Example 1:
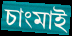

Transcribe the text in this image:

চাংমাই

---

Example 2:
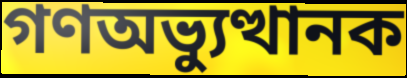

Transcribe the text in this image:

গণঅভ্যুত্থানক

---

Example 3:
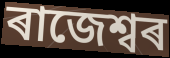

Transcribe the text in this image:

ৰাজেশ্বৰ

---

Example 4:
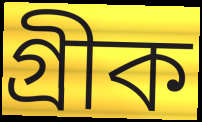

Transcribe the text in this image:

গ্ৰীক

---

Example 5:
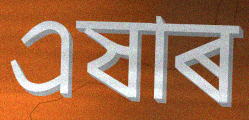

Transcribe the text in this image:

এষাৰ